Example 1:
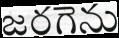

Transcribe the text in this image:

జరగెను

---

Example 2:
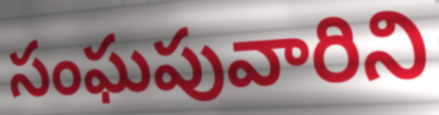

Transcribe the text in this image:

సంఘపువారిని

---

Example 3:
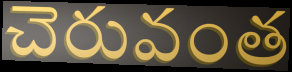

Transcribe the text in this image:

చెరువంత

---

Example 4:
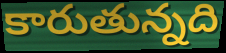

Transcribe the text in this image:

కారుతున్నది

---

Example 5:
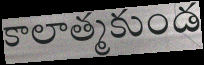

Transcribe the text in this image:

కాలాత్మకుండ